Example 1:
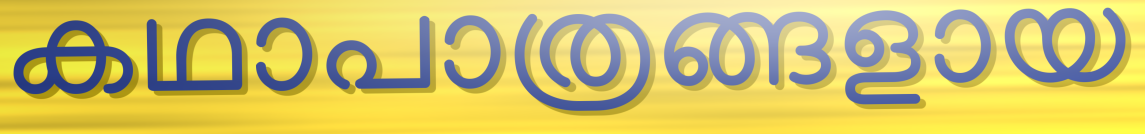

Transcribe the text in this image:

കഥാപാത്രങ്ങളായ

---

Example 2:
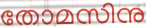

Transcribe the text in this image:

തോമസിനു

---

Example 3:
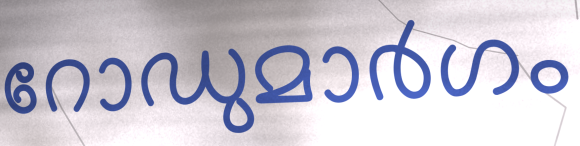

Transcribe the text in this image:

റോഡുമാർഗം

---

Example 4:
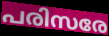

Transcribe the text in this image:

പരിസരേ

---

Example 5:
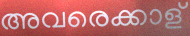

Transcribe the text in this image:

അവരെക്കാള്